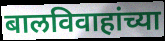
बालविवाहांच्या